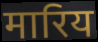
मारिय